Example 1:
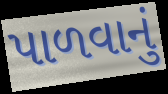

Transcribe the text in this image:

પાળવાનું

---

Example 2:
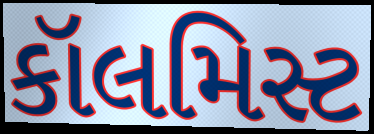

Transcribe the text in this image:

કૉલમિસ્ટ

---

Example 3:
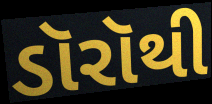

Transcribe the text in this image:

ડૉરૉથી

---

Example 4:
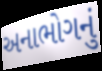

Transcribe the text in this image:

અનાભોગનું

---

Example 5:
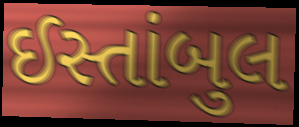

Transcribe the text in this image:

ઈસ્તાંબુલ